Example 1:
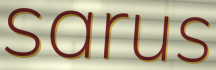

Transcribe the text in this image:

sarus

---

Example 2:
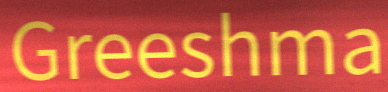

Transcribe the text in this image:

Greeshma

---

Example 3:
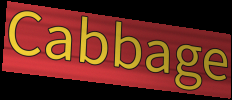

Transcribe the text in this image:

Cabbage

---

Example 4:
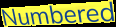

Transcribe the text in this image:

Numbered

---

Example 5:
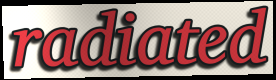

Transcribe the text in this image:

radiated